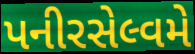
પનીરસેલ્વમે